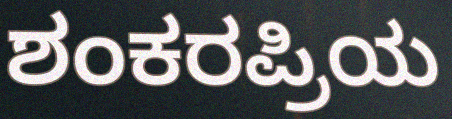
ಶಂಕರಪ್ರಿಯ